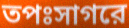
তপঃসাগরে